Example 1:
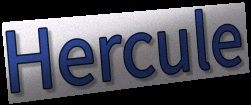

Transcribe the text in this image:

Hercule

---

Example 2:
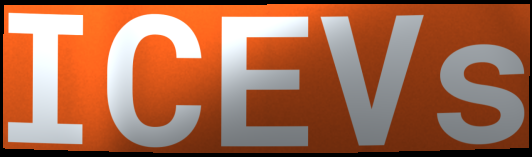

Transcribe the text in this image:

ICEVs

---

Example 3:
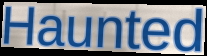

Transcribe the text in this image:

Haunted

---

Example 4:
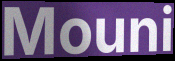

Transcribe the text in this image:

Mouni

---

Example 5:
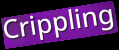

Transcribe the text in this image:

Crippling